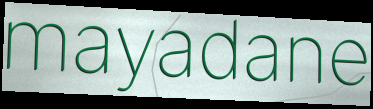
mayadane